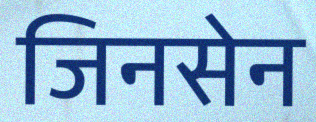
जिनसेन